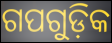
ଗପଗୁଡ଼ିକ